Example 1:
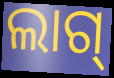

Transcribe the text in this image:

ଲାଗ୍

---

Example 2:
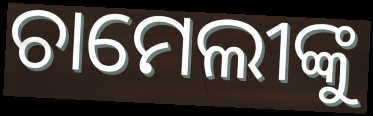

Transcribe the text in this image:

ଚାମେଲୀଙ୍କୁ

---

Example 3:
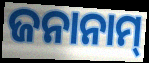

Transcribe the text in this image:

ଜନାନାମ୍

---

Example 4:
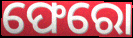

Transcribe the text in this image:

ଫେରୋ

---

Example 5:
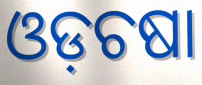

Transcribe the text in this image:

ଓଡ଼ଚଷା